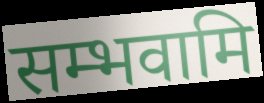
सम्भवामि